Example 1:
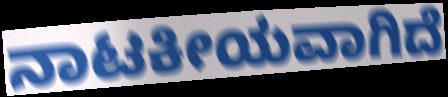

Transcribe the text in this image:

ನಾಟಕೀಯವಾಗಿದೆ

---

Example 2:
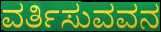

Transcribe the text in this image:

ವರ್ತಿಸುವವನ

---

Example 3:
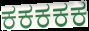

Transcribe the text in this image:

ಕಕಕಕಕ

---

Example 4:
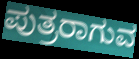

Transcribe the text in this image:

ಪುತ್ರರಾಗುವ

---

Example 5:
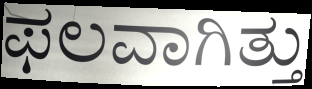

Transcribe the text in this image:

ಫಲವಾಗಿತ್ತು